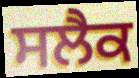
ਸਲੈਕ